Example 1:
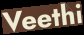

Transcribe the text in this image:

Veethi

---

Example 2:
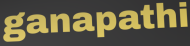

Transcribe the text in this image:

ganapathi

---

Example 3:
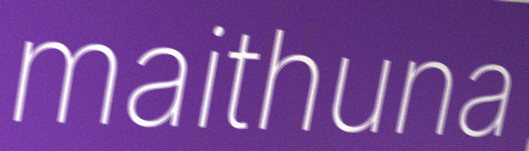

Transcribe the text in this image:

maithuna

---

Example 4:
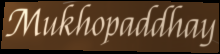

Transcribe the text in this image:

Mukhopaddhay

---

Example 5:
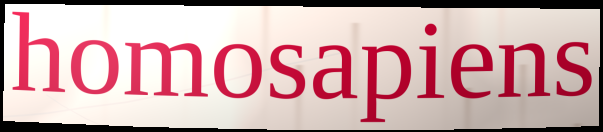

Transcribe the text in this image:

homosapiens